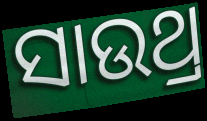
ସାଉଥ୍ର